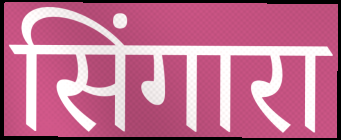
सिंगारा